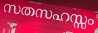
സതസഹസ്സം